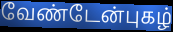
வேண்டேன்புகழ்